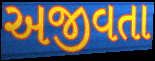
અજીવતા